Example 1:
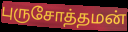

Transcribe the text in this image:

புருசோத்தமன்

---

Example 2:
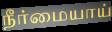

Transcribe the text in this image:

நீர்மையாய்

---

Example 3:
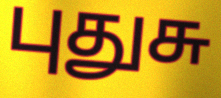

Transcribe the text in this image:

புதுசு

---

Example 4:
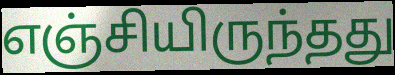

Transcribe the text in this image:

எஞ்சியிருந்தது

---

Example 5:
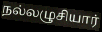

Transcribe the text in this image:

நல்லழுசியார்